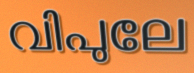
വിപുലേ